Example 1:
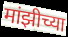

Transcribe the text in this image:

मांझीच्या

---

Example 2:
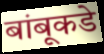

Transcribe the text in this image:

बांबूकडे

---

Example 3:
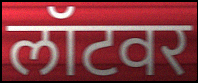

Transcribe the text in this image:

लॉटवर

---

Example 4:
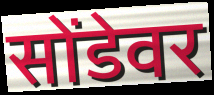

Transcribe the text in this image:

सोंडेवर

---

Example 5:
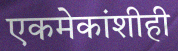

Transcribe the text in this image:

एकमेकांशीही